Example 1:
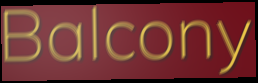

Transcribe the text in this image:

Balcony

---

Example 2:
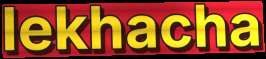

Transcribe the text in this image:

lekhacha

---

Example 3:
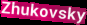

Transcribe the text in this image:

Zhukovsky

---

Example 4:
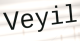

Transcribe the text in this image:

Veyil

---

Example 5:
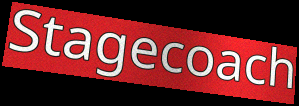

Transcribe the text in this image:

Stagecoach